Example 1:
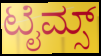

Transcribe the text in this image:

ಟೈಮ್ಸ್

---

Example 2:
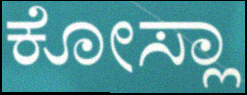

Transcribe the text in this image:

ಕೋಸ್ಲಾ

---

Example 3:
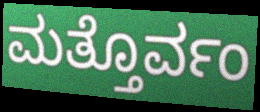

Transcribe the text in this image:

ಮತ್ತೊರ್ವಂ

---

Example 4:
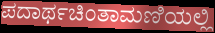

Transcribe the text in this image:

ಪದಾರ್ಥಚಿಂತಾಮಣಿಯಲ್ಲಿ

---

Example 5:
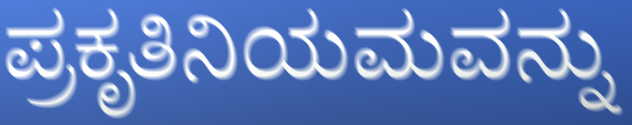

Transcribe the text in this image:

ಪ್ರಕೃತಿನಿಯಮವನ್ನು